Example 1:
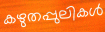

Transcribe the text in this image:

കഴുതപ്പുലികൾ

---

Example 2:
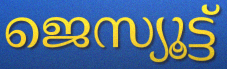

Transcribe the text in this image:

ജെസ്യൂട്ട്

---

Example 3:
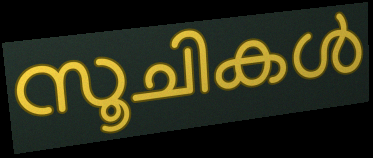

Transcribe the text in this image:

സൂചികൾ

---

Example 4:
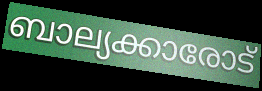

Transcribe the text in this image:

ബാല്യക്കാരോട്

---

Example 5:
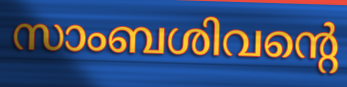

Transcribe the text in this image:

സാംബശിവന്റെ